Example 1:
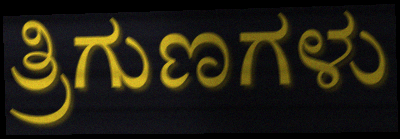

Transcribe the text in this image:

ತ್ರಿಗುಣಗಳು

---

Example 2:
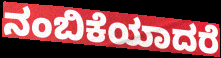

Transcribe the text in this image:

ನಂಬಿಕೆಯಾದರೆ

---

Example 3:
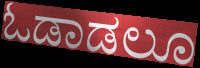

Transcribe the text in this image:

ಓಡಾಡಲೂ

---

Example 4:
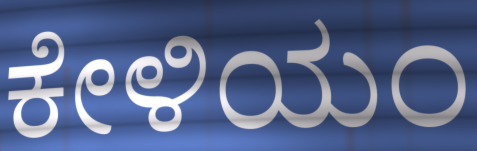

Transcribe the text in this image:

ಕೇಳಿಯಂ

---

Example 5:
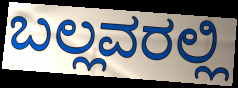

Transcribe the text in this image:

ಬಲ್ಲವರಲ್ಲಿ